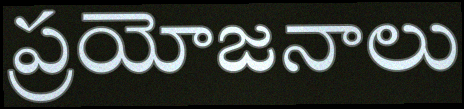
ప్రయోజనాలు